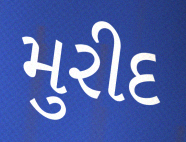
મુરીદ